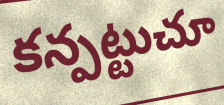
కన్పట్టుచూ